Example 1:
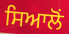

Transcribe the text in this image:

ਸਿਆਲੋਂ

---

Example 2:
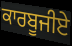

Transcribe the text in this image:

ਕਾਰਬੂਜੀਏ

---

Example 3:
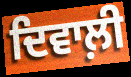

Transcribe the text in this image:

ਦਿਵਾਲ਼ੀ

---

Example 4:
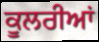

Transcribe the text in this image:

ਕੂਲਰੀਆਂ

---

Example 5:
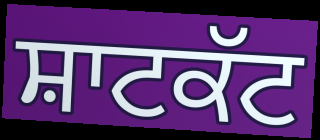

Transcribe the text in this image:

ਸ਼ਾਟਕੱਟ